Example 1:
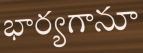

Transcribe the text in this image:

భార్యగానూ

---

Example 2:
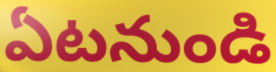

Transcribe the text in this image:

ఏటనుండి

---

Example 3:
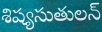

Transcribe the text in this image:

శిష్యసుతులన్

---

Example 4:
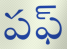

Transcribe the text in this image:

పఫ్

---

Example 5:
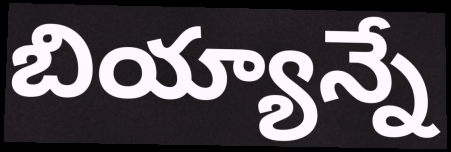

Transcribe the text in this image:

బియ్యాన్నే